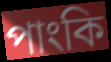
পাংকি